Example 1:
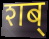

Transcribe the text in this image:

शब्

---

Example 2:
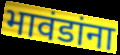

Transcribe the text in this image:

भावंडांना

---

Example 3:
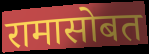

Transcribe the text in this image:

रामासोबत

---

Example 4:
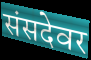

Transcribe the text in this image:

संसदेवर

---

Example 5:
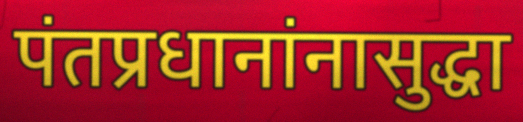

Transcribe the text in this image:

पंतप्रधानांनासुद्धा